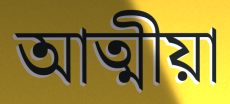
আত্মীয়া